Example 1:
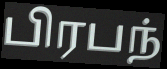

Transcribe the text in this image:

பிரபந்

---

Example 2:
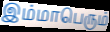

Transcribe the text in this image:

இம்மாபெரும்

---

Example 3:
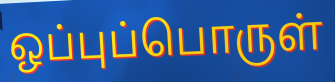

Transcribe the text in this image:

ஒப்புப்பொருள்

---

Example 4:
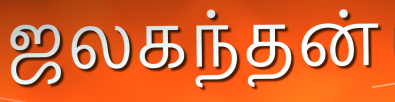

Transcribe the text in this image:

ஜலகந்தன்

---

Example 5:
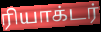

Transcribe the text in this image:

ரியாக்டர்